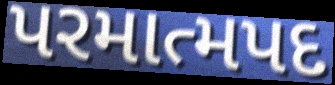
પરમાત્મપદ